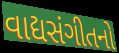
વાદ્યસંગીતનો